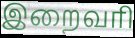
இறைவரி